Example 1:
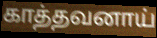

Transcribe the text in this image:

காத்தவனாய்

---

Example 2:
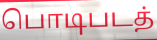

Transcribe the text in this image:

பொடிபடத்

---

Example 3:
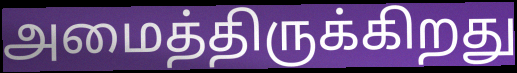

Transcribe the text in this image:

அமைத்திருக்கிறது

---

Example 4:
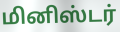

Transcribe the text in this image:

மினிஸ்டர்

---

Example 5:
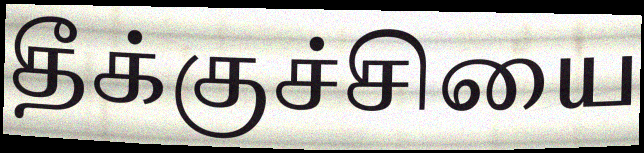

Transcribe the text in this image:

தீக்குச்சியை